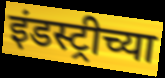
इंडस्ट्रीच्या